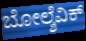
ಬೋಲ್ಶೆವಿಕ್